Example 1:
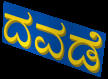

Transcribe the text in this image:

ದವಡೆ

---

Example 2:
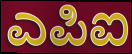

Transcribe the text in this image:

ಎಪಿಐ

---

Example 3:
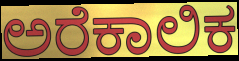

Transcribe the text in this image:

ಅರೆಕಾಲಿಕ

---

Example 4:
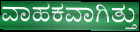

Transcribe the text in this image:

ವಾಹಕವಾಗಿತ್ತು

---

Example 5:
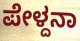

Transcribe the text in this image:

ಪೇಳ್ದನಾ